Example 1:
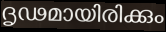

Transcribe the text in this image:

ദൃഢമായിരിക്കും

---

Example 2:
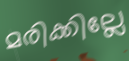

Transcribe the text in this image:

മരിക്കില്ലേ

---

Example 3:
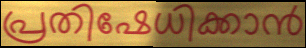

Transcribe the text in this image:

പ്രതിഷേധിക്കാൻ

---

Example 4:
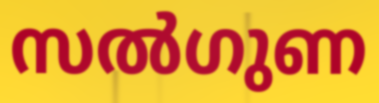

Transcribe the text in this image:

സൽഗുണ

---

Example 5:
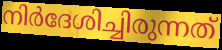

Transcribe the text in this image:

നിർദേശിച്ചിരുന്നത്